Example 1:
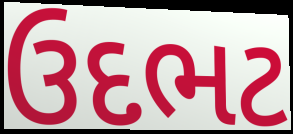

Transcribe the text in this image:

ઉદભટ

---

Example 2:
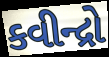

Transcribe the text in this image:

કવીન્દ્રો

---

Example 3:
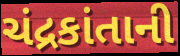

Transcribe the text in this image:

ચંદ્રકાંતાની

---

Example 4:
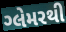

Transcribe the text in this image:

ગ્લેમરથી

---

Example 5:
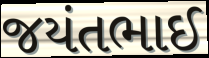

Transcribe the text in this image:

જયંતભાઈ